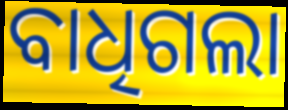
ବାଧିଗଲା